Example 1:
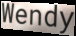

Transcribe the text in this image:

Wendy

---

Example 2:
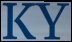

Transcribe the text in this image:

KY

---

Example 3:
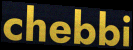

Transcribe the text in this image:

chebbi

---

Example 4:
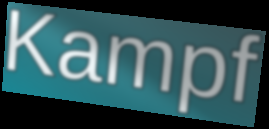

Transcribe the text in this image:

Kampf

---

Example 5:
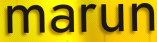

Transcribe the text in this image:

marun